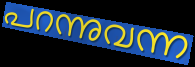
പറന്നുവന്ന